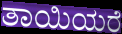
ತಾಯಿಯರೆ